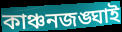
কাঞ্চনজঙ্ঘাই